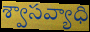
శ్వాసవ్యాధి